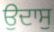
ਉਦਾਸੁ